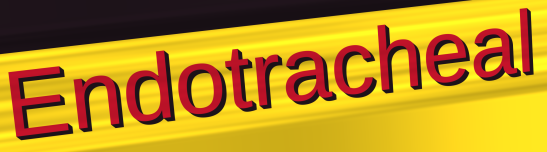
Endotracheal